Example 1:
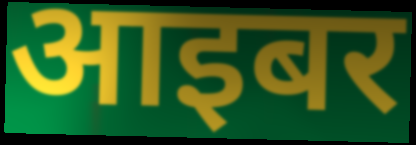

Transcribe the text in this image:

आइबर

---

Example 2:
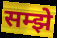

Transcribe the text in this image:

सम्झे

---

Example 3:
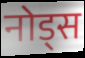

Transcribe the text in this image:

नोड्स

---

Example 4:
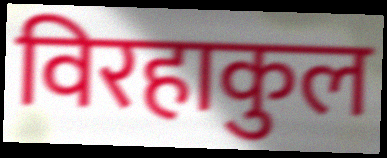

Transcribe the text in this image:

विरहाकुल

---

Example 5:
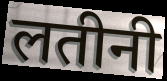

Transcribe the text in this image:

लतीनी